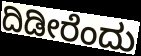
ದಿಡೀರೆಂದು